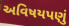
અવિષયપણું